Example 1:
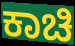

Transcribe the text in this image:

ಕಾಚಿ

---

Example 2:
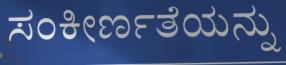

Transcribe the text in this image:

ಸಂಕೀರ್ಣತೆಯನ್ನು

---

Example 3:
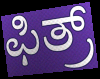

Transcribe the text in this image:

ಫಿತ್ರ್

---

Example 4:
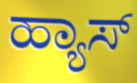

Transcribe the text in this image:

ಹ್ಯಾಸ್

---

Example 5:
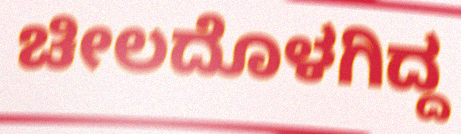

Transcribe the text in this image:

ಚೀಲದೊಳಗಿದ್ದ